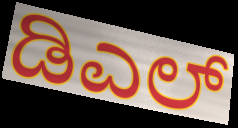
ಡಿಎಲ್